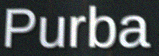
Purba